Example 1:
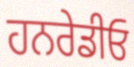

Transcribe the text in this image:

ਹਨਰੇਡੀਓ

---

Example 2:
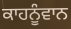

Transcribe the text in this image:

ਕਾਹਨੂੰਵਾਨ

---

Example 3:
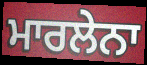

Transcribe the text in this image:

ਮਾਰਲੇਨਾ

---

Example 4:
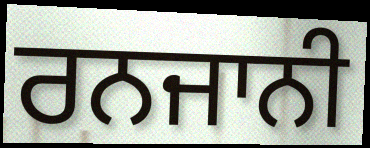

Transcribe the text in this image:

ਰਨਜਾਨੀ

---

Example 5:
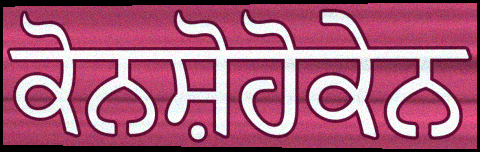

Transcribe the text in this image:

ਕੋਨਸ਼ੋਹੋਕੇਨ